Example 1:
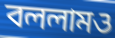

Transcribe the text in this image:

বললামও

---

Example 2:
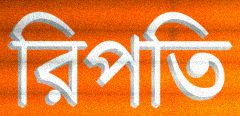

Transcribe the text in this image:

রিপতি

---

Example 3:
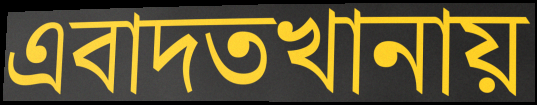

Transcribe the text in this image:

এবাদতখানায়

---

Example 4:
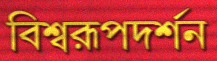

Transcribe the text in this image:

বিশ্বরূপদর্শন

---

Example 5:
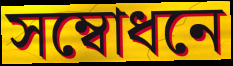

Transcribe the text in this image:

সম্বোধনে